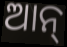
ଆନ୍